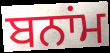
ਬਨਾਂਮ